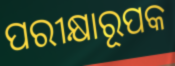
ପରୀକ୍ଷାରୂପକ